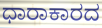
ಧಾರಾಕಾರದ